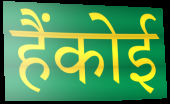
हैंकोई